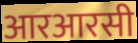
आरआरसी